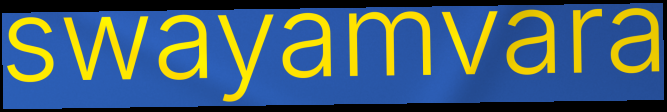
swayamvara